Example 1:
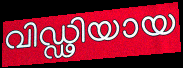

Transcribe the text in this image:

വിഡ്ഢിയായ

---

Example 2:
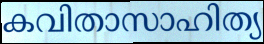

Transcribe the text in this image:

കവിതാസാഹിത്യ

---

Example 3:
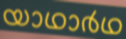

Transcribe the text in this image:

യാഥാർഥ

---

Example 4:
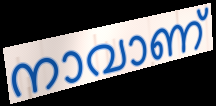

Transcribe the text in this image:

നാവാണ്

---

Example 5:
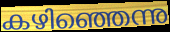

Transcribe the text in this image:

കഴിഞ്ഞെന്നു